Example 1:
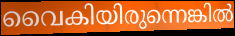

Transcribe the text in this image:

വൈകിയിരുന്നെങ്കിൽ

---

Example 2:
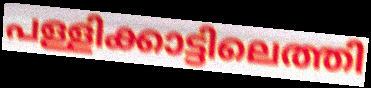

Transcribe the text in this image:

പള്ളിക്കാട്ടിലെത്തി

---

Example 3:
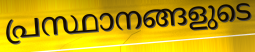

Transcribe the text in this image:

പ്രസ്ഥാനങ്ങളുടെ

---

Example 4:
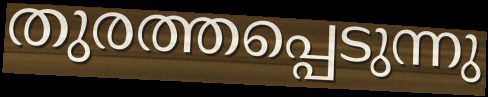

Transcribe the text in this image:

തുരത്തപ്പെടുന്നു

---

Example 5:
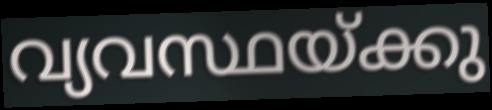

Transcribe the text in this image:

വ്യവസ്ഥയ്ക്കു